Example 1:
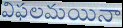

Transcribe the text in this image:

విఫలమయినా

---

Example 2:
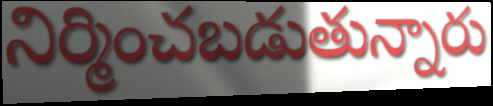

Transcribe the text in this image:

నిర్మించబడుతున్నారు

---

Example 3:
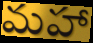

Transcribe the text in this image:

మహా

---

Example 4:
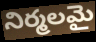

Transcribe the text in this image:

నిర్మలమై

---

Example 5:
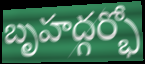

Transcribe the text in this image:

బృహద్గర్భో